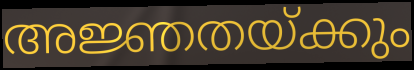
അജ്ഞതയ്ക്കും